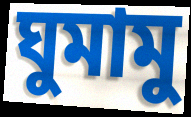
ঘুমামু